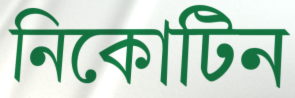
নিকোটিন